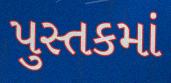
પુસ્તકમાં